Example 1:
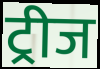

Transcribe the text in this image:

ट्रीज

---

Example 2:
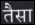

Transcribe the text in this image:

तैसा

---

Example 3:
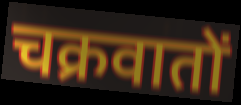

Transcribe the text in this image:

चक्रवातों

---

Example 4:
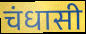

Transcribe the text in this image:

चंधासी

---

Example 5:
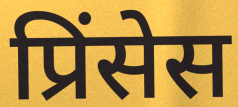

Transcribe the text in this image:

प्रिंसेस